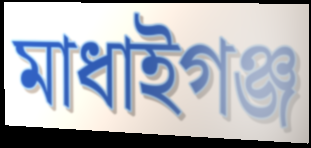
মাধাইগঞ্জ